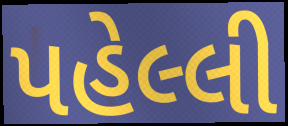
પહેલ્લી